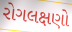
રોગલક્ષણો